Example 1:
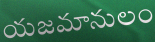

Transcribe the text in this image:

యజమానులం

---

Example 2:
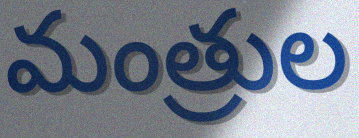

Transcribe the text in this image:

మంత్రుల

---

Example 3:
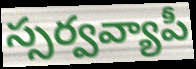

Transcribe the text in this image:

స్సర్వవ్యాపీ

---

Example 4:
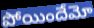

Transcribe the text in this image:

పోయిందేమో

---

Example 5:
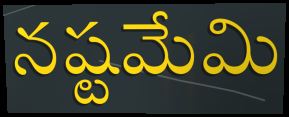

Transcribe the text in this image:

నష్టమేమి